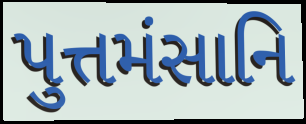
પુત્તમંસાનિ